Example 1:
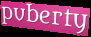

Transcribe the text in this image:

puberty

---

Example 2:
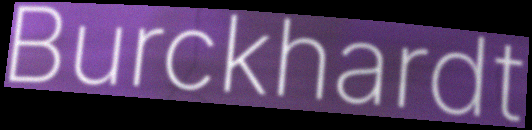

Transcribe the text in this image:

Burckhardt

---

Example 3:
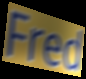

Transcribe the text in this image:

Fred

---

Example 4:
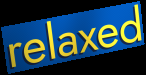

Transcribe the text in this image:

relaxed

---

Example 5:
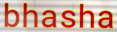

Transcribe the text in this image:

bhasha